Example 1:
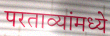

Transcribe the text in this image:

परताव्यांमध्ये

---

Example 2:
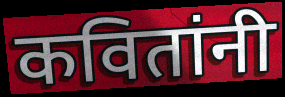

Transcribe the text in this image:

कवितांनी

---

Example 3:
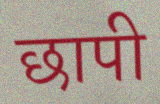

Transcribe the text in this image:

छापी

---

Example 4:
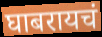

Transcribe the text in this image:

घाबरायचं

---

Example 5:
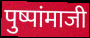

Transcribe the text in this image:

पुष्पांमाजी